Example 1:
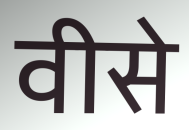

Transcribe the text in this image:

वीसे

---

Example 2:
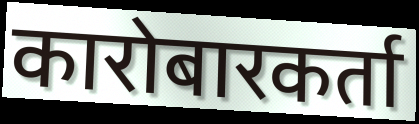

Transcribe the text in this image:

कारोबारकर्ता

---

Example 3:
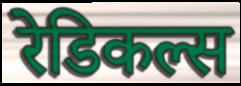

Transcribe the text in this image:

रेडिकल्स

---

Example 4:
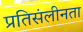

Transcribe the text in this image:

प्रतिसंलीनता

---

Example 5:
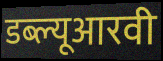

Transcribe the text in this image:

डब्ल्यूआरवी